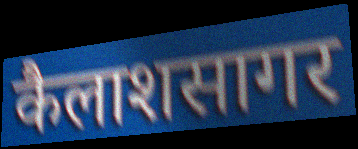
कैलाशसागर